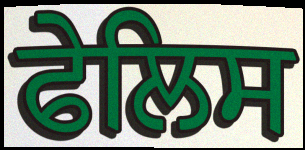
ਫੇਲਿਸ